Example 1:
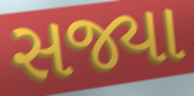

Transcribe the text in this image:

સજ્યા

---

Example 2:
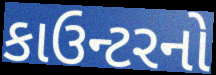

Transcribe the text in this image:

કાઉન્ટરનો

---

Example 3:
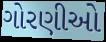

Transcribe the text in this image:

ગોરણીઓ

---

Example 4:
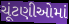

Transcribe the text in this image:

ચૂંટણીઓમાં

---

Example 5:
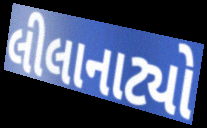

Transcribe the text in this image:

લીલાનાટ્યો